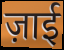
ज़ाई